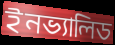
ইনভ্যালিড